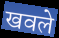
खवले